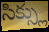
సిక్స్లు